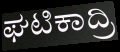
ಘಟಿಕಾದ್ರಿ